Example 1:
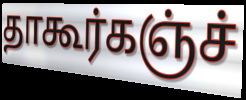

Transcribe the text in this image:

தாகூர்கஞ்ச்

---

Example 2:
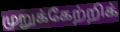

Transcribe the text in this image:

முறுக்கேற்றிக்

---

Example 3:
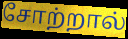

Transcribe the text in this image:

சோற்றால்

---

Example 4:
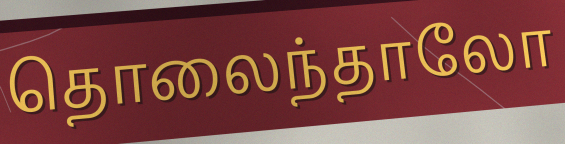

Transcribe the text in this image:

தொலைந்தாலோ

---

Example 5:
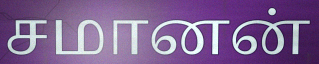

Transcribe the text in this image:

சமானன்